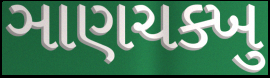
ઞાણચક્ખુ